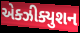
એક્ઝીક્યુશન